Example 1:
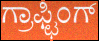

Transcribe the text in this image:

ಗ್ರಾಫ್ಟಿಂಗ್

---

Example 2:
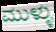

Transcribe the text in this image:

ಮುಳ್ಳು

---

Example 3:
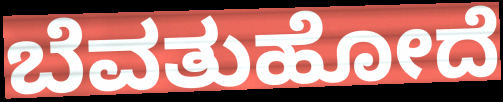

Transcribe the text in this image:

ಬೆವತುಹೋದೆ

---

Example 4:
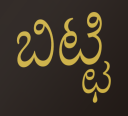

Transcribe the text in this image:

ಬಿಟ್ಟಿ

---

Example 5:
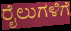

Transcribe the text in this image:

ರೈಲುಗಳಿಗೆ